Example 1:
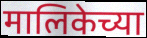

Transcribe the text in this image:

मालिकेच्या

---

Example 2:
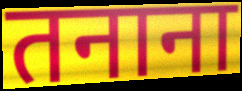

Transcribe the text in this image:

तनाना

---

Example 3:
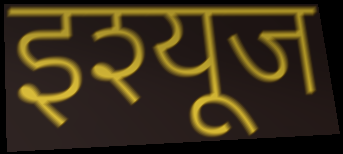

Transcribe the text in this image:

इश्यूज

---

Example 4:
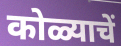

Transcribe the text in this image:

कोळ्याचें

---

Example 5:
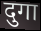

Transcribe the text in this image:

दुगा